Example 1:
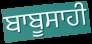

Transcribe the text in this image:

ਬਾਬੂਸਾਹੀ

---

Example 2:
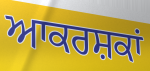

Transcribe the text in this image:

ਆਕਰਸ਼ਕਾਂ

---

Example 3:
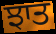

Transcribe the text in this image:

ਝਾਤ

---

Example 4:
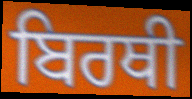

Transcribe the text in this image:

ਬਿਰਥੀ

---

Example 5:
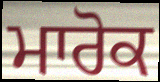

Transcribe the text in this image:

ਮਾਰੋਕ